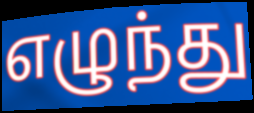
எழுந்து